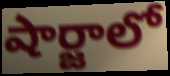
షార్జాలో